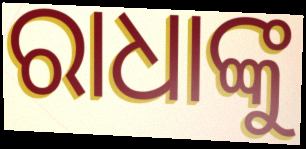
ରାଧାଙ୍କୁ